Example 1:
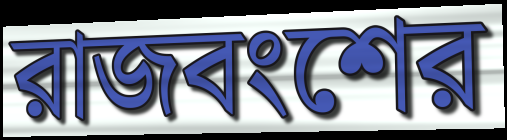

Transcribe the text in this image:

রাজবংশের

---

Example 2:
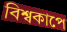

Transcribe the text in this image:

বিশ্বকাপে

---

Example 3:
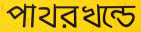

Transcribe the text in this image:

পাথরখন্ডে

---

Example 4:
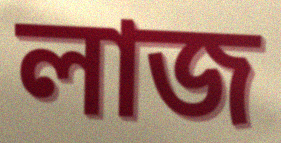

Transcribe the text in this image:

লাজ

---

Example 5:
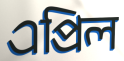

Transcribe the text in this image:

এপ্রিল